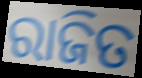
ରାଜିତ